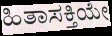
ಹಿತಾಸಕ್ತಿಯೇ